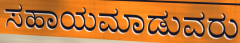
ಸಹಾಯಮಾಡುವರು